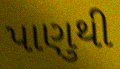
પાણુથી